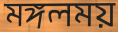
মঙ্গলময়